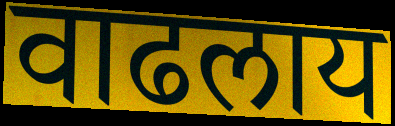
वाढलाय